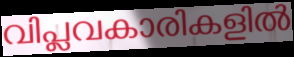
വിപ്ലവകാരികളിൽ